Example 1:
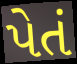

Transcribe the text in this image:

પેતં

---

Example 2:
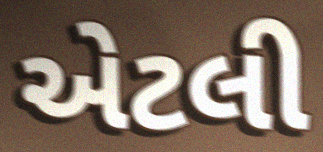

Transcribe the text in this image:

એટલી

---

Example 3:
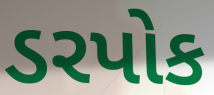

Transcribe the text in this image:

ડરપોક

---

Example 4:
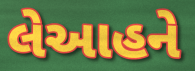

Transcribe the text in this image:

લેઆહને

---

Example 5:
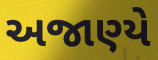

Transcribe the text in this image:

અજાણ્યે